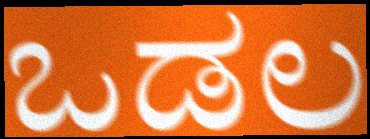
ಒಡಲ